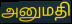
அனுமதி